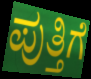
ಪುತ್ತಿಗೆ